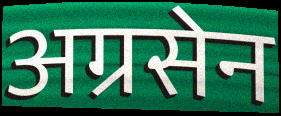
अग्रसेन